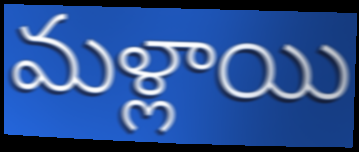
మళ్లాయి